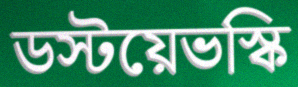
ডস্টয়েভস্কি